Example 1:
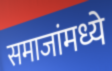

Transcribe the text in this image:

समाजांमध्ये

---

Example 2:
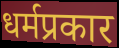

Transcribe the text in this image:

धर्मप्रकार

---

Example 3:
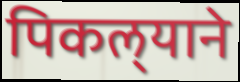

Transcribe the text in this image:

पिकल्याने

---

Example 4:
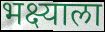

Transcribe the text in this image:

भक्ष्याला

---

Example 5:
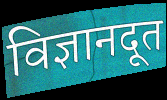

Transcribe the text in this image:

विज्ञानदूत